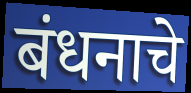
बंधनाचे